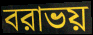
বরাভয়